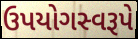
ઉપયોગસ્વરૂપે